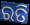
ରତି